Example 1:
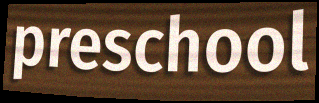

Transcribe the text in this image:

preschool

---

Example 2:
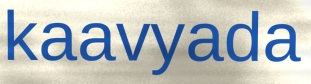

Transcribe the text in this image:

kaavyada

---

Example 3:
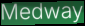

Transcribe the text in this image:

Medway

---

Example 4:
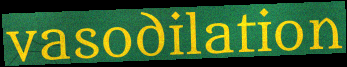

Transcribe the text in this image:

vasodilation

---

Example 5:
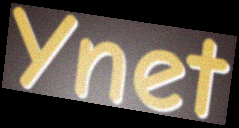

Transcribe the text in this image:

Ynet